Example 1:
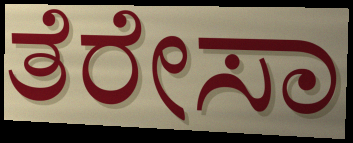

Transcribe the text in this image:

ತೆರೇಸಾ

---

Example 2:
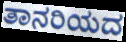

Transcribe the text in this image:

ತಾನರಿಯದ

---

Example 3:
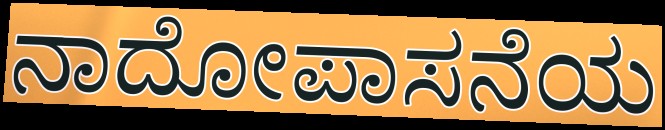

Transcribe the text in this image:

ನಾದೋಪಾಸನೆಯ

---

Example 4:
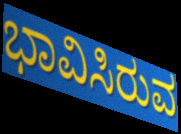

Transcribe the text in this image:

ಭಾವಿಸಿರುವ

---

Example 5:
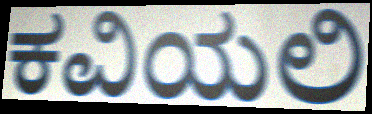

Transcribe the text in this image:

ಕವಿಯಲಿ